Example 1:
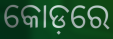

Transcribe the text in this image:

କୋଡ଼ରେ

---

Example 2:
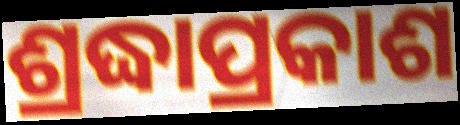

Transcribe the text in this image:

ଶ୍ରଦ୍ଧାପ୍ରକାଶ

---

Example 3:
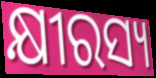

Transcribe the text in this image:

କ୍ଷୀରସ୍ୟ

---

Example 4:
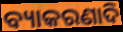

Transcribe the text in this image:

ବ୍ୟାକରଣାଦି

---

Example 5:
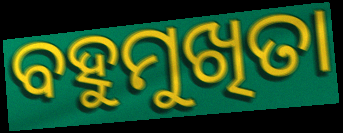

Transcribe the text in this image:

ବହୁମୁଖିତା